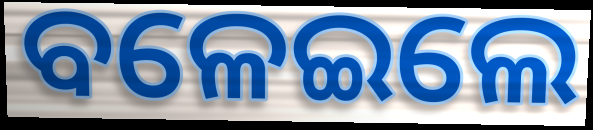
ବଳେଇଲେ